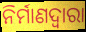
ନିର୍ମାଣଦ୍ୱାରା